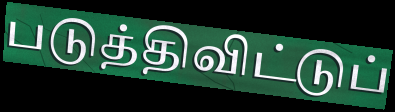
படுத்திவிட்டுப்